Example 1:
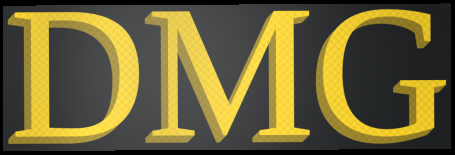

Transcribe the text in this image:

DMG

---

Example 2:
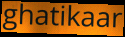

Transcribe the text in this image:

ghatikaar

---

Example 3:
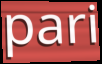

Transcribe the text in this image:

pari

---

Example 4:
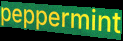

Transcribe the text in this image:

peppermint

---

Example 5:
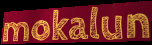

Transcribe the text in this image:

mokalun